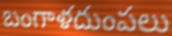
బంగాళదుంపలు